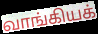
வாங்கியக்